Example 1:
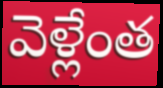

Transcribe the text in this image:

వెళ్లేంత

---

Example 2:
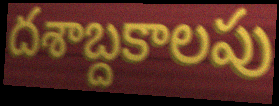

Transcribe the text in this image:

దశాబ్దకాలపు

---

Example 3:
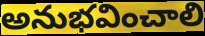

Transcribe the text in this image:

అనుభవించాలి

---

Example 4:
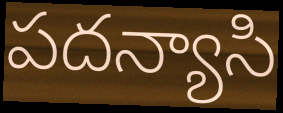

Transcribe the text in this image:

పదన్యాసి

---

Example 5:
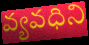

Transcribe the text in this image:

వ్యవధిని